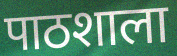
पाठशाला